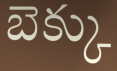
బెక్కు